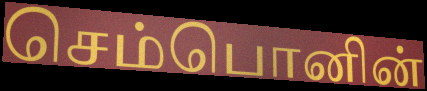
செம்பொனின்